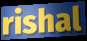
rishal